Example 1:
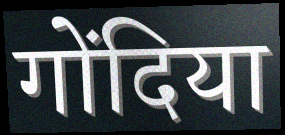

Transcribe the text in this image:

गोंदिया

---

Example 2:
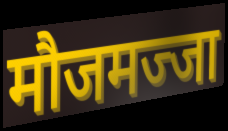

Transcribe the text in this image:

मौजमज्जा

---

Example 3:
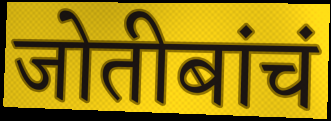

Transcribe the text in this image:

जोतीबांचं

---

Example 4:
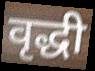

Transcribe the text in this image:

वृद्धी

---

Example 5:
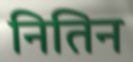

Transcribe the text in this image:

नितिन